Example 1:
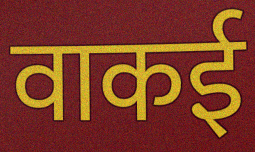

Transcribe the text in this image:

वाकई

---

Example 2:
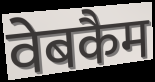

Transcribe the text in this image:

वेबकैम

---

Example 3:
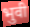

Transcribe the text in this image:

भुवी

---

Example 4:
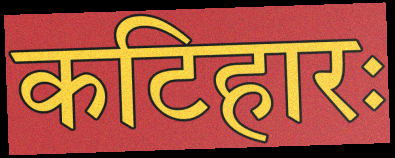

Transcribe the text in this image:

कटिहारः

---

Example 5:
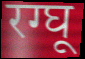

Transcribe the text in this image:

रग्घू